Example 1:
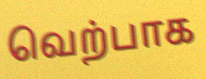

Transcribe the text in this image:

வெற்பாக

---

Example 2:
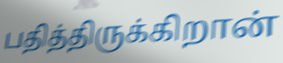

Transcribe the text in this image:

பதித்திருக்கிறான்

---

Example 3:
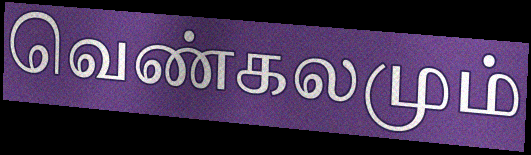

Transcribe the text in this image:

வெண்கலமும்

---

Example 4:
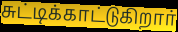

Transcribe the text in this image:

சுட்டிக்காட்டுகிறார்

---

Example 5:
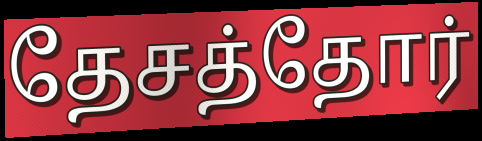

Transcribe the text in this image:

தேசத்தோர்